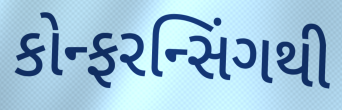
કોન્ફરન્સિંગથી